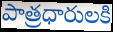
పాత్రధారులకి